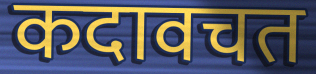
कदावचत